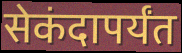
सेकंदापर्यंत